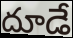
దూడే